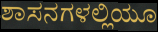
ಶಾಸನಗಳಲ್ಲಿಯೂ